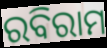
ରବିରାମ